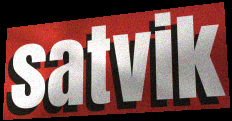
satvik